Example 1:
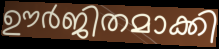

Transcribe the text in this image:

ഊർജിതമാക്കി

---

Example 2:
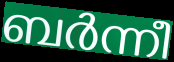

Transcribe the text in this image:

ബർന്നീ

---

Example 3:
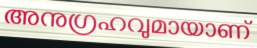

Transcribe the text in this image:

അനുഗ്രഹവുമായാണ്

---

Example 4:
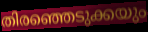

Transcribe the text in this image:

തിരഞ്ഞെടുക്കയും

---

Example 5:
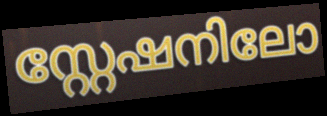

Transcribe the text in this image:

സ്റ്റേഷനിലോ